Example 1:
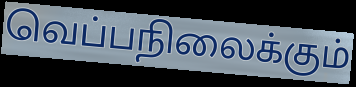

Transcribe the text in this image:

வெப்பநிலைக்கும்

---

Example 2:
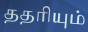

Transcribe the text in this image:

ததரியும்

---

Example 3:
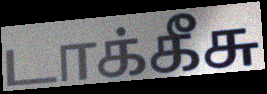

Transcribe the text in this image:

டாக்கீசு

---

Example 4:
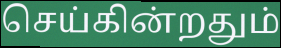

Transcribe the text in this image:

செய்கின்றதும்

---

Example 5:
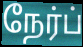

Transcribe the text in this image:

நேர்ப்